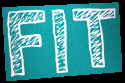
FIT